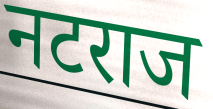
नटराज